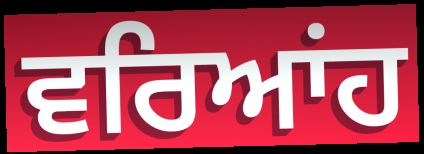
ਵਰਿਆਂਹ